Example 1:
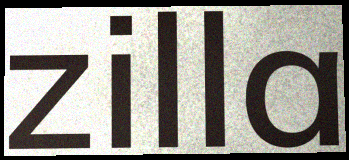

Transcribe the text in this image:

zilla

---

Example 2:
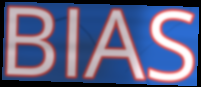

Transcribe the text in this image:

BIAS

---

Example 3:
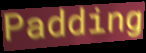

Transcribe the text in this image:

Padding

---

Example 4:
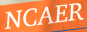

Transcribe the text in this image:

NCAER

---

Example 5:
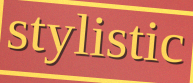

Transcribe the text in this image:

stylistic